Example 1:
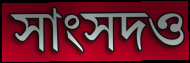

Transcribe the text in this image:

সাংসদও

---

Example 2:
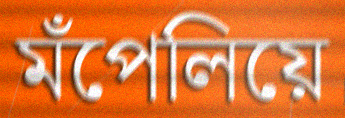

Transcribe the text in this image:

মঁপেলিয়ে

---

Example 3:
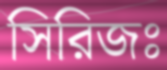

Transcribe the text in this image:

সিরিজঃ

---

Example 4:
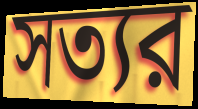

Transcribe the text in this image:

সত্যর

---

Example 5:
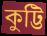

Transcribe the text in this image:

কুট্টি